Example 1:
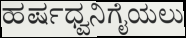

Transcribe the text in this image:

ಹರ್ಷಧ್ವನಿಗೈಯಲು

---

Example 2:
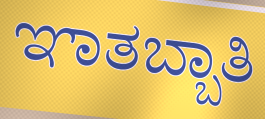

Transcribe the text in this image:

ಞಾತಬ್ಬಾತಿ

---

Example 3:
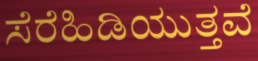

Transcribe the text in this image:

ಸೆರೆಹಿಡಿಯುತ್ತವೆ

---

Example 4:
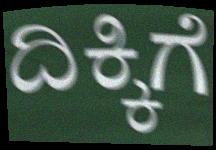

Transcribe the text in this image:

ದಿಕ್ಕಿಗೆ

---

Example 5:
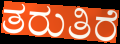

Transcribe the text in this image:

ತರುತಿರೆ